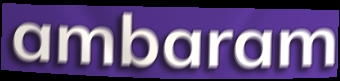
ambaram